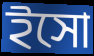
ইসো